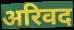
अरिवद